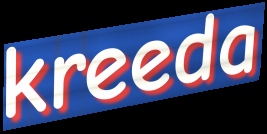
kreeda